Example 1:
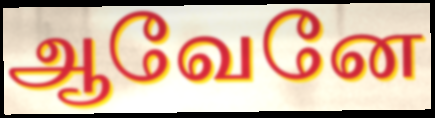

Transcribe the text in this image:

ஆவேனே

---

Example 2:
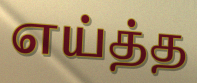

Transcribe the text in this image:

எய்த்த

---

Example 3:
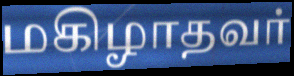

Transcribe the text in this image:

மகிழாதவர்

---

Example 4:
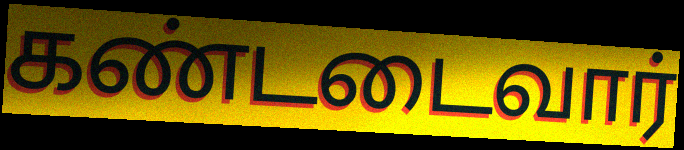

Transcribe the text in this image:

கண்டடைவார்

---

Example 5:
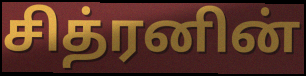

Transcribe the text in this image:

சித்ரனின்